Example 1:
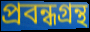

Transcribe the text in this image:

প্রবন্ধগ্রন্থ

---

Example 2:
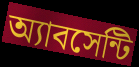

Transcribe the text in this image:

অ্যাবসেন্টি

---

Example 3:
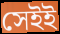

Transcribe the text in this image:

সেইই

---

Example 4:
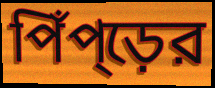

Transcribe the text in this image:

পিঁপ্‌ড়ের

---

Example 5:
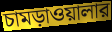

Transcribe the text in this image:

চামড়াওয়ালার